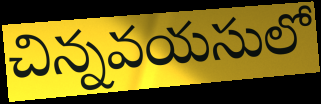
చిన్నవయసులో